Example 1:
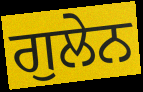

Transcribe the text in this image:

ਗੁਲੇਨ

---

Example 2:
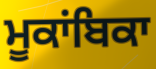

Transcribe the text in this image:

ਮੂਕਾਂਬਿਕਾ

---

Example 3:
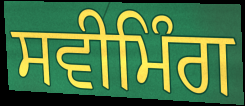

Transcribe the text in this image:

ਸਵੀਮਿੰਗ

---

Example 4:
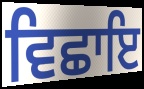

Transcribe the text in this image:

ਵਿਛਾਇ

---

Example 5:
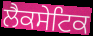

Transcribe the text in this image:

ਲੈਕਸੇਟਿਕ